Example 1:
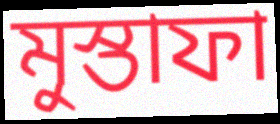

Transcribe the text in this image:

মুস্তাফা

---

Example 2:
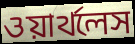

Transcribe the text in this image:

ওয়ার্থলেস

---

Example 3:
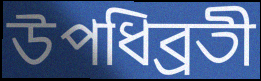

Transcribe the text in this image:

উপধিব্রতী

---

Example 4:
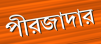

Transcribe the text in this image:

পীরজাদার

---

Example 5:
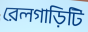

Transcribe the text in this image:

রেলগাড়িটি